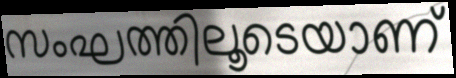
സംഘത്തിലൂടെയാണ്